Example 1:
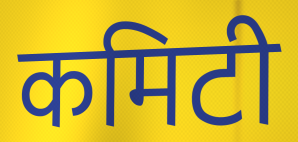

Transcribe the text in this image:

कमिटी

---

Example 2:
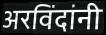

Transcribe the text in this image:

अरविंदांनी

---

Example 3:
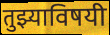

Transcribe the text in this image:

तुझ्याविषयी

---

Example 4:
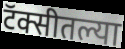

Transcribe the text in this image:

टॅक्सीतल्या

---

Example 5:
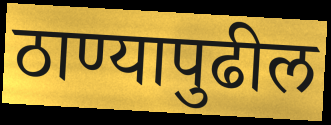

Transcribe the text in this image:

ठाण्यापुढील